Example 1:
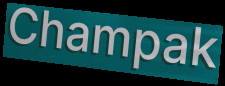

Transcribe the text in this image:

Champak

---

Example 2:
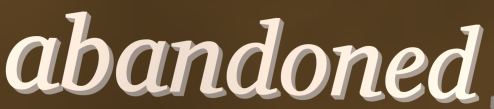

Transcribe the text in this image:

abandoned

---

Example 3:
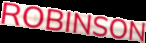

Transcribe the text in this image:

ROBINSON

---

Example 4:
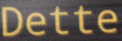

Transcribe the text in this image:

Dette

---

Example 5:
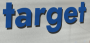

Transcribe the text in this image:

target